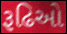
રૂઢિઓ